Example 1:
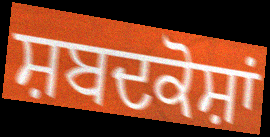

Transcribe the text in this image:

ਸ਼ਬਦਕੋਸ਼ਾਂ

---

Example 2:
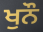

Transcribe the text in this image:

ਖੁਨੌ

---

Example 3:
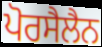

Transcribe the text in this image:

ਪੋਰਸੈਲੈਨ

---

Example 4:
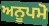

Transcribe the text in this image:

ਅਨੂਪਮੋ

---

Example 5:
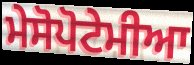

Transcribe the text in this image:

ਮੇਸੋਪੋਟੇਮੀਆ